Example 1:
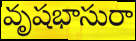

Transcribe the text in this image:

వృషభాసురా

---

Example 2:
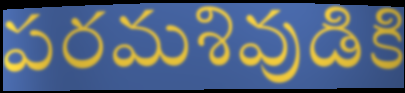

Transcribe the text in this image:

పరమశివుడికి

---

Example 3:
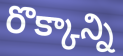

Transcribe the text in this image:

రొక్కాన్ని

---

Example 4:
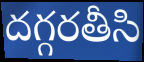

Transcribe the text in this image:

దగ్గరతీసి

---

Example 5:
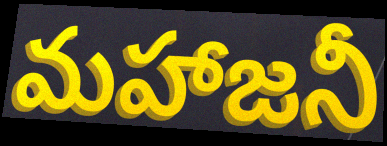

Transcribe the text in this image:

మహాజనీ